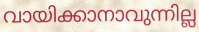
വായിക്കാനാവുന്നില്ല